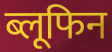
ब्लूफिन